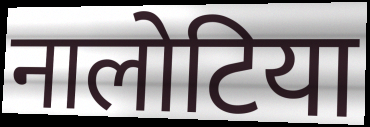
नालोटिया